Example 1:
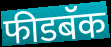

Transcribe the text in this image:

फीडबॅक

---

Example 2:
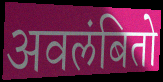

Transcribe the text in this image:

अवलंबितो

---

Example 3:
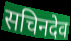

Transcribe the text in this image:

सचिनदेव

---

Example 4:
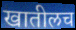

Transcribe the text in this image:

खातीलच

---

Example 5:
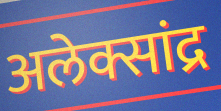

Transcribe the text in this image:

अलेक्सांद्र